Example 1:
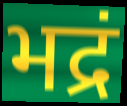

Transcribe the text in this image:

भद्रं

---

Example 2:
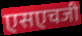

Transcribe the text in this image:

एसएचजी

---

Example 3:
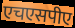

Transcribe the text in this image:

एचएसपीए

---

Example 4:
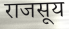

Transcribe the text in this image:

राजसूय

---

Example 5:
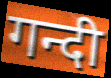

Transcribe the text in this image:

गन्दी